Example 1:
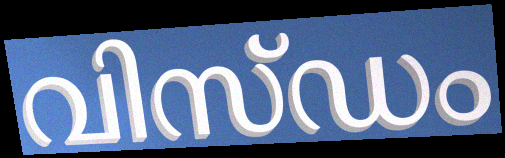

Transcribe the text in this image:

വിസ്ഡം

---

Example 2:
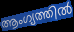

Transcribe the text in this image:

ആംഗ്യത്തിൽ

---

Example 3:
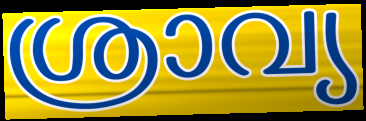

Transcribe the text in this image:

ശ്രാവ്യ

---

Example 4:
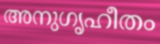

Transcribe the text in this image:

അനുഗൃഹീതം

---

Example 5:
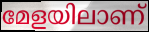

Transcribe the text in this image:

മേളയിലാണ്